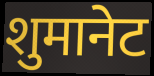
शुमानेट